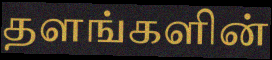
தளங்களின்